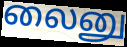
லைனு